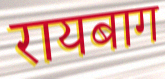
रायबाग